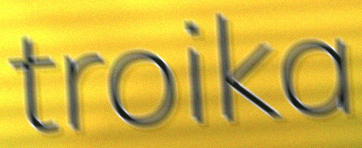
troika